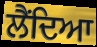
ਲੈਂਦਿਆ